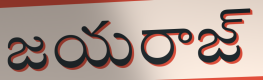
జయరాజ్